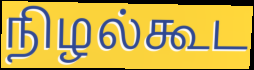
நிழல்கூட